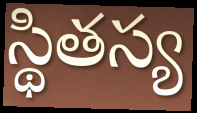
స్థితస్య